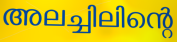
അലച്ചിലിന്റെ